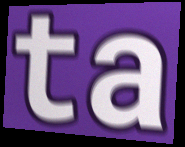
ta